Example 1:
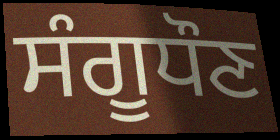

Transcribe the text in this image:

ਸੰਗੂਧੌਣ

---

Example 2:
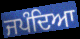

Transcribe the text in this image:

ਜਪੰਦਿਆ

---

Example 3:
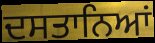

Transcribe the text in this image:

ਦਸਤਾਨਿਆਂ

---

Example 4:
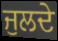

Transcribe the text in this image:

ਜੁਲਦੇ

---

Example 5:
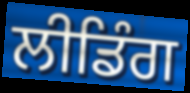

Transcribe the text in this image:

ਲੀਡਿੰਗ